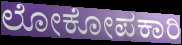
ಲೋಕೋಪಕಾರಿ